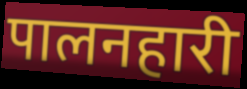
पालनहारी